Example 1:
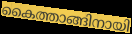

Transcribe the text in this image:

കൈത്താങ്ങിനായി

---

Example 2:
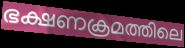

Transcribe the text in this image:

ഭക്ഷണക്രമത്തിലെ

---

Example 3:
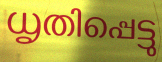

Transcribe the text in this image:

ധൃതിപ്പെട്ടു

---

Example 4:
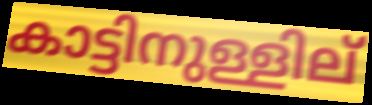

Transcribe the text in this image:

കാട്ടിനുള്ളില്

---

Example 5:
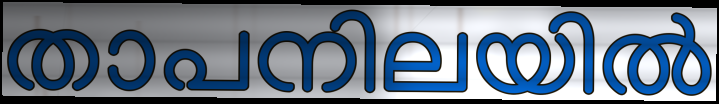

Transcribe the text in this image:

താപനിലയിൽ